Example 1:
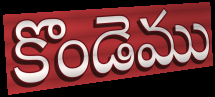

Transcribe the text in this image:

కొండెము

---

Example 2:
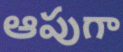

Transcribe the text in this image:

ఆపుగా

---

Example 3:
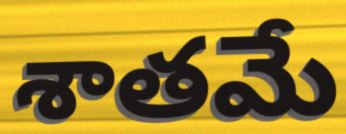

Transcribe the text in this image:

శాతమే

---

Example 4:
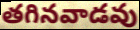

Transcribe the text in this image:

తగినవాడవు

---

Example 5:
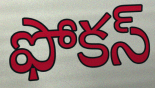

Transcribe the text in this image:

ఫోకస్